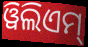
ୱିଲିଏମ୍